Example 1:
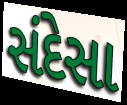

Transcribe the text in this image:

સંદેસા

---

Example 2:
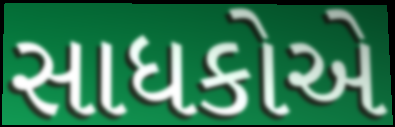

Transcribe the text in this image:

સાધકોએ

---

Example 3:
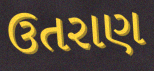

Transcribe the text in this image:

ઉતરાણ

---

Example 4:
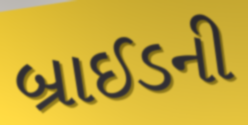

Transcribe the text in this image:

બ્રાઈડની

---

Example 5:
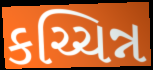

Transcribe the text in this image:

કચ્ચિન્ન